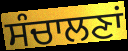
ਸੰਚਾਲਣਾਂ